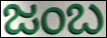
ಜಂಬ